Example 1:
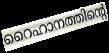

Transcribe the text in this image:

റൈഹാനത്തിന്റെ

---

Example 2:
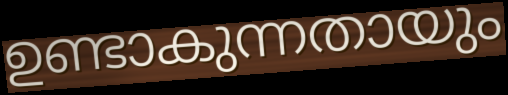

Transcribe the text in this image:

ഉണ്ടാകുന്നതായും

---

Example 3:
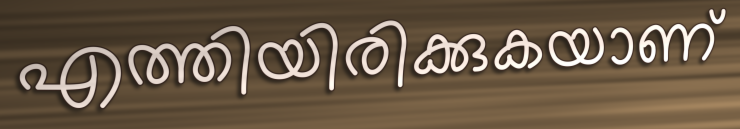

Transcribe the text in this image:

എത്തിയിരിക്കുകയാണ്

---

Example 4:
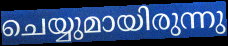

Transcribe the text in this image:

ചെയ്യുമായിരുന്നു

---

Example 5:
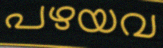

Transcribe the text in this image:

പഴയവ